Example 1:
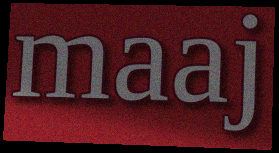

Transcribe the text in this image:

maaj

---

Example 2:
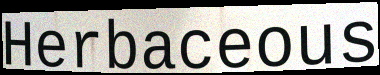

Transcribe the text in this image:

Herbaceous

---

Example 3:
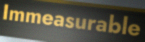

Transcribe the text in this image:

Immeasurable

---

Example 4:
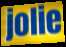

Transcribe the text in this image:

jolie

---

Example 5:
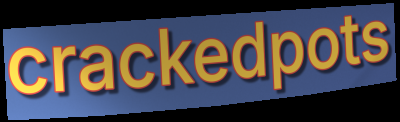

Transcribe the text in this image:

crackedpots